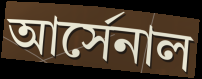
আর্সেনাল